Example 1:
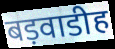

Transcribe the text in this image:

बड़वाडीह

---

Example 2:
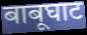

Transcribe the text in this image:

बाबूघाट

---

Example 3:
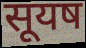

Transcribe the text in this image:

सूयष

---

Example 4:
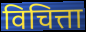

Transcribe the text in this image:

विचित्ता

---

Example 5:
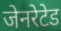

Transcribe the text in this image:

जेनरेटेड